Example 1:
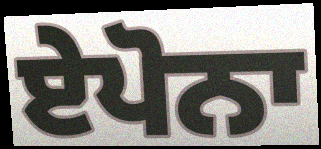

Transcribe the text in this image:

ਏਪੋਨਾ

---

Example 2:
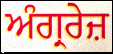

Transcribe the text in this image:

ਅੰਗ੍ਰਰੇਜ਼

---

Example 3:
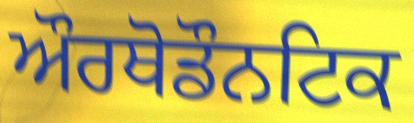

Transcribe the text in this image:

ਔਰਥੋਡੌਨਟਿਕ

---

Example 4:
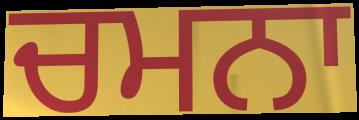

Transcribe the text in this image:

ਚਮਨਾ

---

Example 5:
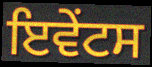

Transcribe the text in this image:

ਇਵੇੰਟਸ